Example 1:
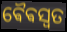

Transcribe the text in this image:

ଵୈଵସ୍ୱତ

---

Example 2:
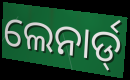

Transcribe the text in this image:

ଲେନାର୍ଡ୍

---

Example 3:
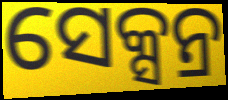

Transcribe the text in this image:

ସେକ୍ସନ୍ର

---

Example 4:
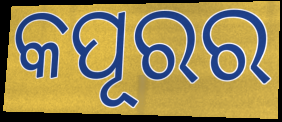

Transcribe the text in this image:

କପୂରର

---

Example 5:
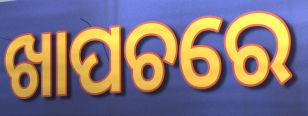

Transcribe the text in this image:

ଖାପଚରେ